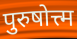
पुरुषोत्त्म